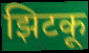
झिटकू